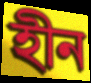
হীন